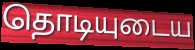
தொடியுடைய